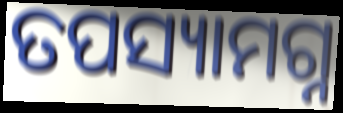
ତପସ୍ୟାମଗ୍ନ